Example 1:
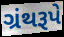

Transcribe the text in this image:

ગ્રંથરૂપે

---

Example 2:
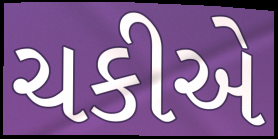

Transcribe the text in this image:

ચકીએ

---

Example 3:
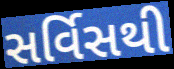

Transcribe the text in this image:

સર્વિસથી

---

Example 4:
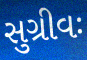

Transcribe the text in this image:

સુગ્રીવઃ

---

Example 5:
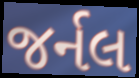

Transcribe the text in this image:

જર્નલ